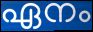
ഏനം